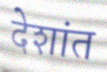
देशांत